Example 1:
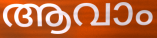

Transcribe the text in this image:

ആവാം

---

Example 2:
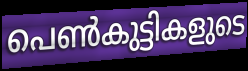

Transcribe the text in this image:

പെൺകുട്ടികളുടെ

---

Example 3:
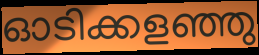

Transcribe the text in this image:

ഓടിക്കളഞ്ഞു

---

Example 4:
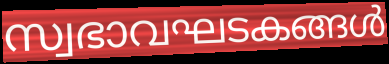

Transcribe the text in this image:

സ്വഭാവഘടകങ്ങൾ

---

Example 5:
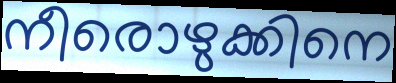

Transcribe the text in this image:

നീരൊഴുക്കിനെ